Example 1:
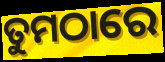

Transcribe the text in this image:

ତୁମଠାରେ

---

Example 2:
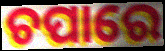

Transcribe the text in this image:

ଚପାରେ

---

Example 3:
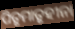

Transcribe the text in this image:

ପିତୃମାତୃହୀନା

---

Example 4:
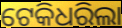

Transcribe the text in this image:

ଟେକିଧରିଲା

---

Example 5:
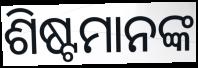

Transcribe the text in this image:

ଶିଷ୍ଟମାନଙ୍କ